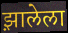
झ़ालेला